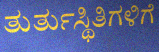
ತುರ್ತುಸ್ಥಿತಿಗಳಿಗೆ